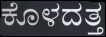
ಕೊಳದತ್ತ